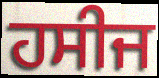
ਹਸੀਜ